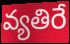
వ్యతిరే